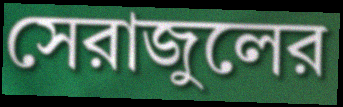
সেরাজুলের